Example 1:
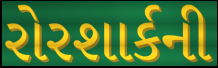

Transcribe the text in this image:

રોરશાર્કની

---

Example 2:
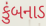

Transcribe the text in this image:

કુંબનાડ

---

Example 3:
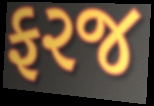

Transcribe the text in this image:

ફરજ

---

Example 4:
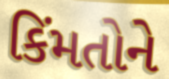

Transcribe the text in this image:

કિંમતોને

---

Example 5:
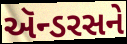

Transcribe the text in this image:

ઍન્ડરસને